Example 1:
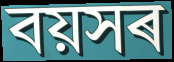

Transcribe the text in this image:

বয়সৰ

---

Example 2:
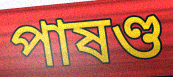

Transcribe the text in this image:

পাষণ্ড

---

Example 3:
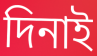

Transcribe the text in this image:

দিনাই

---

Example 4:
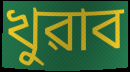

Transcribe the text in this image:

খুৱাব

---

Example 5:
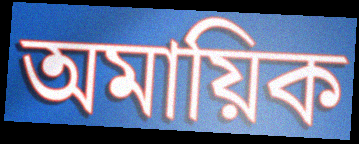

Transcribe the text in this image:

অমায়িক